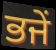
ਭਜੇਂ